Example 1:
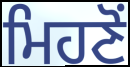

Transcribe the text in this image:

ਮਿਹਣੋਂ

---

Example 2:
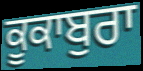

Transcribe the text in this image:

ਕੂਕਾਬੁਰਾ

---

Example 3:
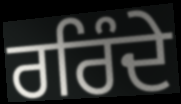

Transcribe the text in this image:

ਰਰਿੰਦੇ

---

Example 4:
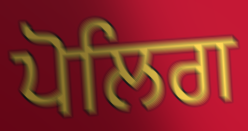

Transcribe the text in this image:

ਪੋਲਿਗ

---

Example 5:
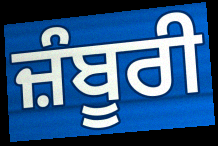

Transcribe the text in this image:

ਜ਼ੰਬੂਰੀ